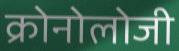
क्रोनोलोजी